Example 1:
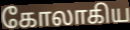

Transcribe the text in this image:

கோலாகிய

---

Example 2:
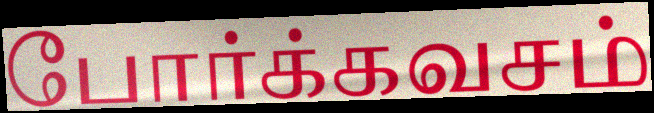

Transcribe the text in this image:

போர்க்கவசம்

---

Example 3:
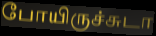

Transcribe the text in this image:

போயிருச்சுடா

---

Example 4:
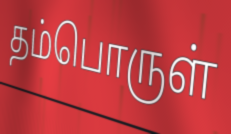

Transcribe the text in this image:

தம்பொருள்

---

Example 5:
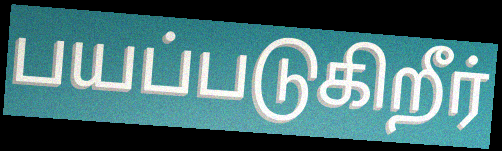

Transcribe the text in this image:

பயப்படுகிறீர்